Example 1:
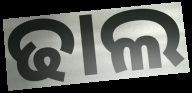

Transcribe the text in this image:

ଢାଲ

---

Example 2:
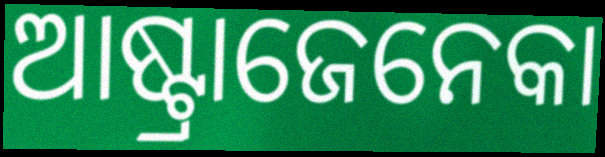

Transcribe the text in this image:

ଆଷ୍ଟ୍ରାଜେନେକା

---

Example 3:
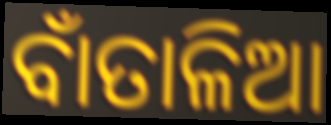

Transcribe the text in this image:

ବାଁତାଳିଆ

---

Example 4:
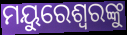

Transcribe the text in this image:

ମୟୁରେଶ୍ବରଙ୍କୁ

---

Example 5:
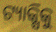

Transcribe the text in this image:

ଟ୍ୟାକ୍ସିକୁ